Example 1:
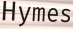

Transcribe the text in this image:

Hymes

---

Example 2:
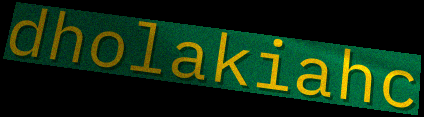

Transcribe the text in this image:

dholakiahc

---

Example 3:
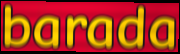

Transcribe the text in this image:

barada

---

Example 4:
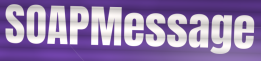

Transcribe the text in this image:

SOAPMessage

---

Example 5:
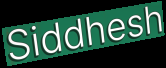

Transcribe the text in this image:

Siddhesh